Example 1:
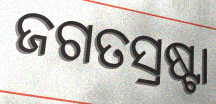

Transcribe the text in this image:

ଜଗତସ୍ରଷ୍ଟା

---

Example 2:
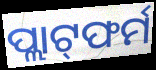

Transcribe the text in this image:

ପ୍ଲାଟ୍‌ଫର୍ମ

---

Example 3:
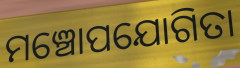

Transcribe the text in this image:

ମଞ୍ଚୋପଯୋଗିତା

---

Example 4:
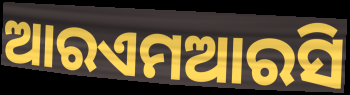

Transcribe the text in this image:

ଆରଏମଆରସି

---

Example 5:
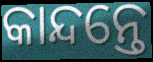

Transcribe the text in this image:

କାନ୍ଦନ୍ତେ